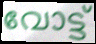
വോട്ട്